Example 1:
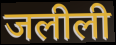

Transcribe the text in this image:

जलीली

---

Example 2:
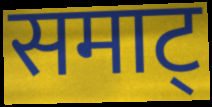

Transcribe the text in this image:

समाट्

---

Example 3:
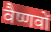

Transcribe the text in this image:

वैष्णवों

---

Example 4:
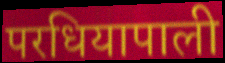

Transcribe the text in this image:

परधियापाली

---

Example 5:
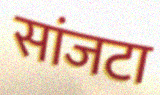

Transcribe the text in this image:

सांजटा